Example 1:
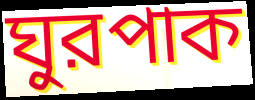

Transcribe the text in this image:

ঘুরপাক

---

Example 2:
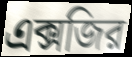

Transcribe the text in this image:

এক্সজির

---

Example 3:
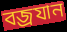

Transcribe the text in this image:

বজ্রযান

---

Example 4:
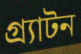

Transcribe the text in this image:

গ্র্যাটন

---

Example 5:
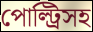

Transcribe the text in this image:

পোল্ট্রিসহ